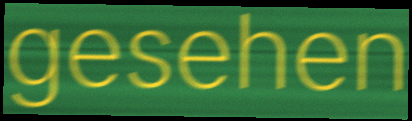
gesehen